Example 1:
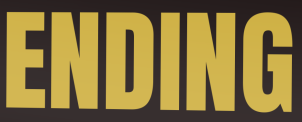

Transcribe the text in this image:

ENDING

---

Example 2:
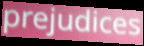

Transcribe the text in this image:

prejudices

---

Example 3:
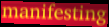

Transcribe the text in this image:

manifesting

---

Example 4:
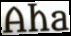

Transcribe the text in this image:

Aha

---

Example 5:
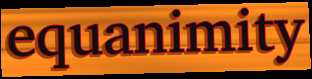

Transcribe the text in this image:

equanimity